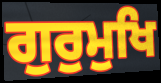
ਗੁਰੁਮੁਖਿ